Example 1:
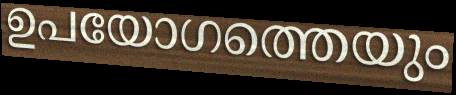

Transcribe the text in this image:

ഉപയോഗത്തെയും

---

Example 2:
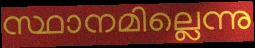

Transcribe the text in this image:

സ്ഥാനമില്ലെന്നു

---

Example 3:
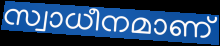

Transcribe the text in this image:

സ്വാധീനമാണ്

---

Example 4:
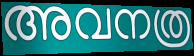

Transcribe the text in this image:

അവനത്ര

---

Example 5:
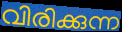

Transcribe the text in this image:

വിരിക്കുന്ന